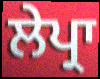
ਲੇਪ੍ਰਾ